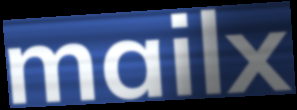
mailx